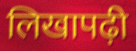
लिखापढ़ी